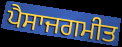
ਪੈਸਾਜਗਮੀਤ